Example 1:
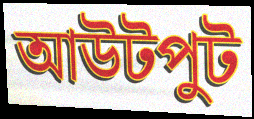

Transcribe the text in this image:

আউটপুট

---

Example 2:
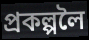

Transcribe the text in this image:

প্ৰকল্পলৈ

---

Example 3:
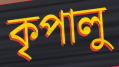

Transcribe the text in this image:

কৃপালু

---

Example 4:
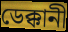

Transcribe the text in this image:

ডেক্কানী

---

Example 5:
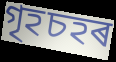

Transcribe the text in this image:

গৃহচহৰ